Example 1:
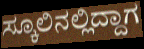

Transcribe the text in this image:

ಸ್ಕೂಲಿನಲ್ಲಿದ್ದಾಗ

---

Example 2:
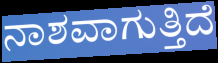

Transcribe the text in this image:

ನಾಶವಾಗುತ್ತಿದೆ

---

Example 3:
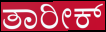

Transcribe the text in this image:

ತಾರೀಕ್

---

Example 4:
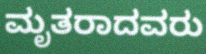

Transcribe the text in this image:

ಮೃತರಾದವರು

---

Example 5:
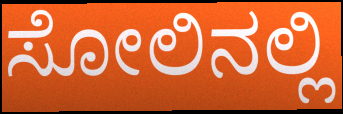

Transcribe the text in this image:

ಸೋಲಿನಲ್ಲಿ